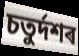
চতুৰ্দশৰ